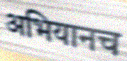
अभियानच